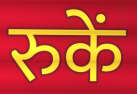
रुकें